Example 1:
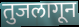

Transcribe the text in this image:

तुजलागून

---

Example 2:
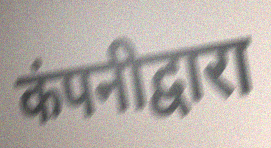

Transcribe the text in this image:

कंपनीद्वारा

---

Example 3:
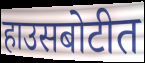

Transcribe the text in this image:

हाउसबोटीत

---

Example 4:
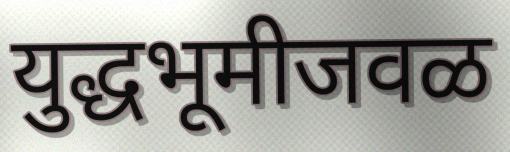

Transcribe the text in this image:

युद्धभूमीजवळ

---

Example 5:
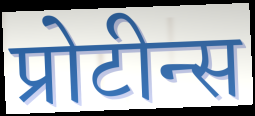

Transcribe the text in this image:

प्रोटीन्स